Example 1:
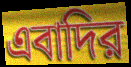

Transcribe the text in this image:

এবাদির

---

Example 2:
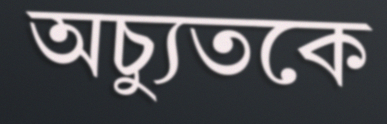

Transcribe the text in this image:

অচ্যুতকে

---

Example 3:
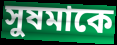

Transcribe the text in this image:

সুষমাকে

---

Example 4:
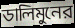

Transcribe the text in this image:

ডালিমুনের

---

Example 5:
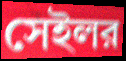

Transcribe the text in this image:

সেইলর